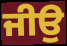
ਜੀਉ